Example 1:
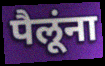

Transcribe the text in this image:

पैलूंना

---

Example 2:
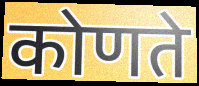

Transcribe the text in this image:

कोणते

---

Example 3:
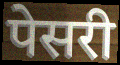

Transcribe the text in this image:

पेसरी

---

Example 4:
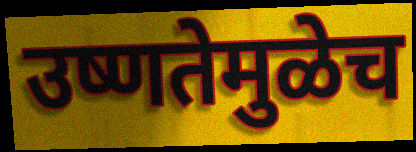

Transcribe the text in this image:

उष्णतेमुळेच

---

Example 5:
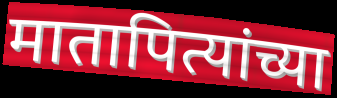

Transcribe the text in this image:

मातापित्यांच्या